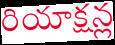
రియాక్షన్ల